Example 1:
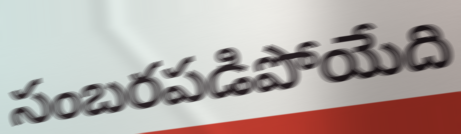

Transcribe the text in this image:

సంబరపడిపోయేది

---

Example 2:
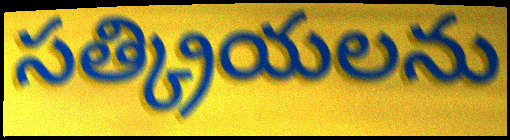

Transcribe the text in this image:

సత్క్రియలను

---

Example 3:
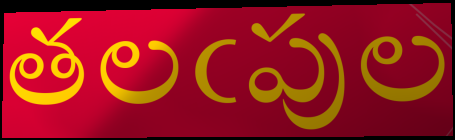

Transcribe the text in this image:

తలఁపుల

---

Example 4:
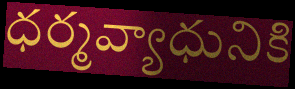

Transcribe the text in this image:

ధర్మవ్యాధునికి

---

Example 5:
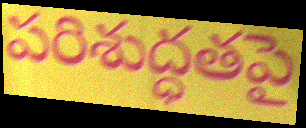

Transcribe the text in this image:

పరిశుద్ధతపై